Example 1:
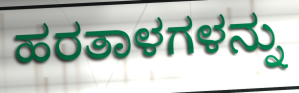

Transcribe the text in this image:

ಹರತಾಳಗಳನ್ನು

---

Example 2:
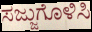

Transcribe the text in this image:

ಸಜ್ಜುಗೊಳಿಸಿ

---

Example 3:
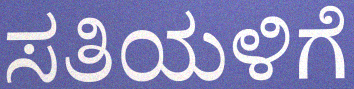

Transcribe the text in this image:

ಸತಿಯಳಿಗೆ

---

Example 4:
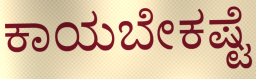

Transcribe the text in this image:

ಕಾಯಬೇಕಷ್ಟೆ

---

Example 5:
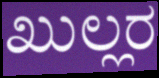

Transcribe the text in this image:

ಖುಲ್ಲರ